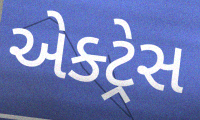
એક્ટ્રેસ